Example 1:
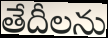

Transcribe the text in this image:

తేదీలను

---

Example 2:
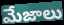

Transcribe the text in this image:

మేజాలు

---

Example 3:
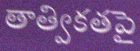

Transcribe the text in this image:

తాత్వికతపై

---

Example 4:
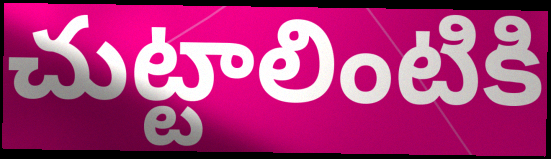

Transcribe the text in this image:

చుట్టాలింటికి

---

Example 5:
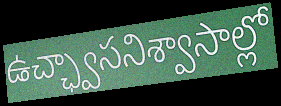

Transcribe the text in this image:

ఉచ్ఛ్వాసనిశ్వాసాల్లో